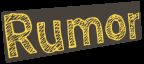
Rumor